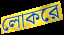
লোকরে